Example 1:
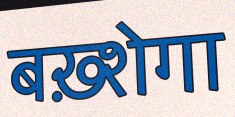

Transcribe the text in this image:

बख़्शेगा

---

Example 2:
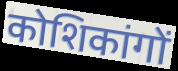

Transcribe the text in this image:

कोशिकांगों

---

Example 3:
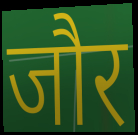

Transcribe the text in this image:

जौर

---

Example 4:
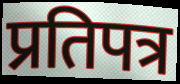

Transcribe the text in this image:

प्रतिपत्र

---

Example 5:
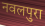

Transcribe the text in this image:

नवलपुरा